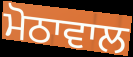
ਮੋਠਾਵਾਲ